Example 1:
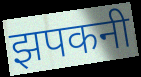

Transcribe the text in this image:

झपकनी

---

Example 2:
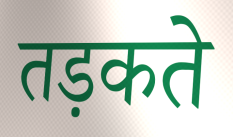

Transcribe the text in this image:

तड़कते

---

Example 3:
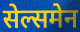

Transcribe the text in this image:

सेल्समेन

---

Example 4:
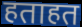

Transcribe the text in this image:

हताहत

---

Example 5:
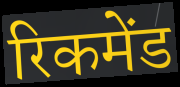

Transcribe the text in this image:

रिकमेंड